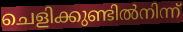
ചെളിക്കുണ്ടിൽനിന്ന്